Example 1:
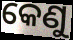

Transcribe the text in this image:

କେଣୁ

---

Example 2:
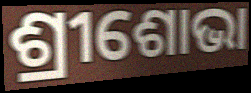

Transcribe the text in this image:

ଶ୍ରୀଶୋଭା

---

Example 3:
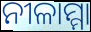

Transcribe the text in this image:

ନୀଳାମ୍ମା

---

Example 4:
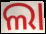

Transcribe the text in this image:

ଲା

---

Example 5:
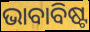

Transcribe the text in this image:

ଭାବାବିଷ୍ଟ